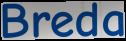
Breda